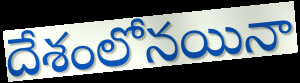
దేశంలోనయినా